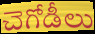
చెగోడీలు